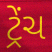
ટ્રેંચ